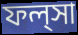
ফল্‌সা